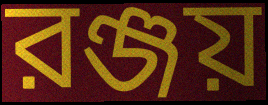
রঞ্জয়